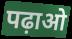
पढ़ाओ